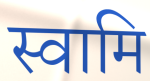
स्वामि